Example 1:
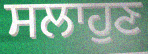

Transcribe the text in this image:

ਸਲਾਹੁਣ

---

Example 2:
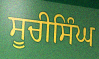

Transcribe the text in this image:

ਸੂਚੀਸਿੰਘ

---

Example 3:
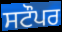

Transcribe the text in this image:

ਸਟੌਪਰ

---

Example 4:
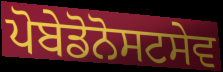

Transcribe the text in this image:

ਪੋਬੇਡੋਨੋਸਟਸੇਵ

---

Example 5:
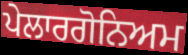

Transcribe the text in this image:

ਪੇਲਾਰਗੋਨਿਅਮ